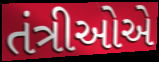
તંત્રીઓએ